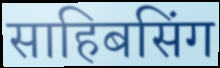
साहिबसिंग